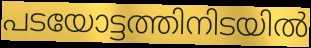
പടയോട്ടത്തിനിടയിൽ